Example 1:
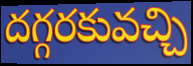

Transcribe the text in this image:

దగ్గరకువచ్చి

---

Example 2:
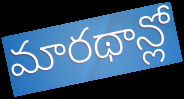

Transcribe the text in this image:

మారథాన్లో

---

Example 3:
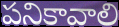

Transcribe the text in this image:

పనికావాలి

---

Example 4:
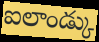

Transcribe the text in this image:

ఐలాండ్కు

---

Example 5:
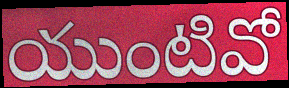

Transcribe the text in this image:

యుంటివో